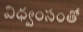
విధ్వంసంతో